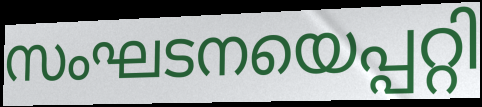
സംഘടനയെപ്പറ്റി